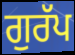
ਗੁਰੱਪ